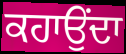
ਕਹਾਉਂਦਾ